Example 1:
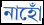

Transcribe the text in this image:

নাহোঁ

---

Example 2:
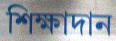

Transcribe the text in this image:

শিক্ষাদান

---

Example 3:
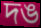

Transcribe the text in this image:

দঙ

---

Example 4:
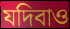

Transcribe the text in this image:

যদিবাও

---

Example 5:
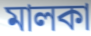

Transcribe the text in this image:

মালকা